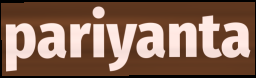
pariyanta